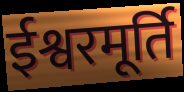
ईश्वरमूर्ति